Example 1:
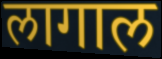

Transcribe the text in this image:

लागाल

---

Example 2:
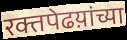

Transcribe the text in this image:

रक्तपेढय़ांच्या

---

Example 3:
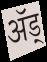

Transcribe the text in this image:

ॲड्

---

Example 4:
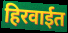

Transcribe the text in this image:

हिरवाईत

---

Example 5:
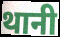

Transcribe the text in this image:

थानी